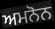
ਅਮਨੋਨ